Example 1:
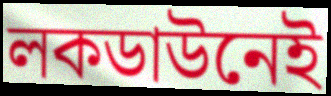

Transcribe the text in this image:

লকডাউনেই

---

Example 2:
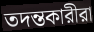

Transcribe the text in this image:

তদন্তকারীরা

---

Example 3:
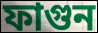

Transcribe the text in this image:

ফাগুন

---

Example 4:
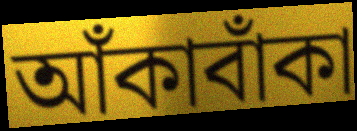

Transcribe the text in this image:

আঁকাবাঁকা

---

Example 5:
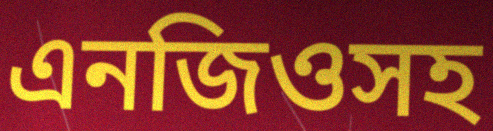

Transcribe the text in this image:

এনজিওসহ